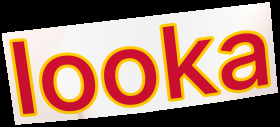
looka